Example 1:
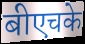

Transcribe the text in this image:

बीएचके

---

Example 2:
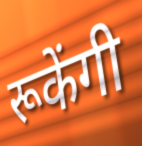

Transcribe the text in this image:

रूकेंगी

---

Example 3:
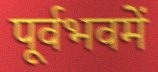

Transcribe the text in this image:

पूर्वभवमें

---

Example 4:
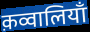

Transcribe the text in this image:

क़व्वालियाँ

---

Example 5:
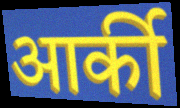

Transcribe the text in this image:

आर्की